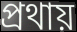
প্রথায়